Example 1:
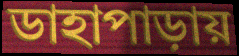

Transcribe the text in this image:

ডাহাপাড়ায়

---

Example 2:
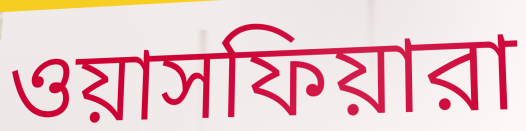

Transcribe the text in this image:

ওয়াসফিয়ারা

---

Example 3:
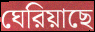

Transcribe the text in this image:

ঘেরিয়াছে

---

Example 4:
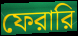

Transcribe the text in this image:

ফেরারি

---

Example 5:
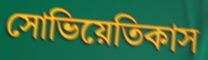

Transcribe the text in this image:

সোভিয়েতিকাস